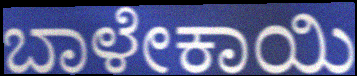
ಬಾಳೇಕಾಯಿ